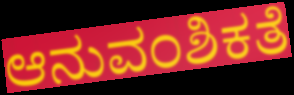
ಆನುವಂಶಿಕತೆ